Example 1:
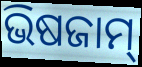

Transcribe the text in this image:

ଭିଷଜାମ୍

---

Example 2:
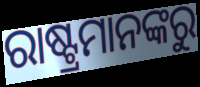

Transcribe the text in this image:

ରାଷ୍ଟ୍ରମାନଙ୍କରୁ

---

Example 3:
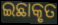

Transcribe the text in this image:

ଇଛାକୃତ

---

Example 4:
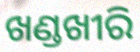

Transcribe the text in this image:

ଖଣ୍ଡଖୀରି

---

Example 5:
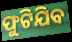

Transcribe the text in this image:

ଫୁଟିଯିବ